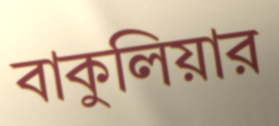
বাকুলিয়ার